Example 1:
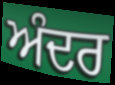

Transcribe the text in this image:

ਅੰਦਰ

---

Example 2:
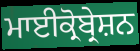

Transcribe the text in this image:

ਮਾਈਕ੍ਰੋਬ੍ਰੇਸ਼ਨ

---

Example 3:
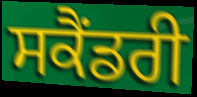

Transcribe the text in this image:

ਸਕੈੰਡਰੀ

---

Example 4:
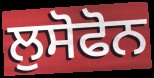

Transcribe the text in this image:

ਲੁਸੋਫੋਨ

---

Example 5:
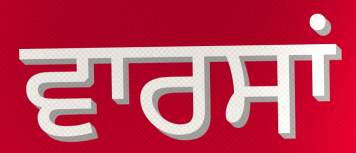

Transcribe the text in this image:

ਵਾਰਸਾਂ